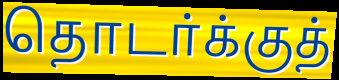
தொடர்க்குத்